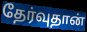
தேர்வுதான்